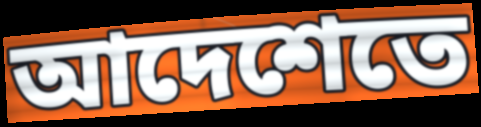
আদেশেতে